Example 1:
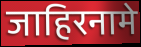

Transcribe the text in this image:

जाहिरनामे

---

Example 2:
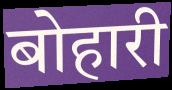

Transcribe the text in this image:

बोहारी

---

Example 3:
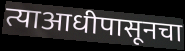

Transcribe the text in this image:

त्याआधीपासूनचा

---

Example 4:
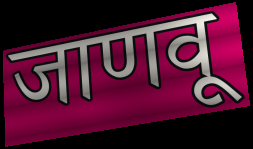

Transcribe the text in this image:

जाणवू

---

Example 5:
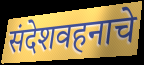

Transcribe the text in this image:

संदेशवहनाचे